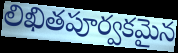
లిఖితపూర్వకమైన